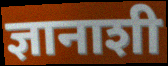
ज्ञानाशी